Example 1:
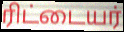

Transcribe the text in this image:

ரிட்டையர்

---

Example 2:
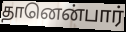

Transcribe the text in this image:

தானென்பார்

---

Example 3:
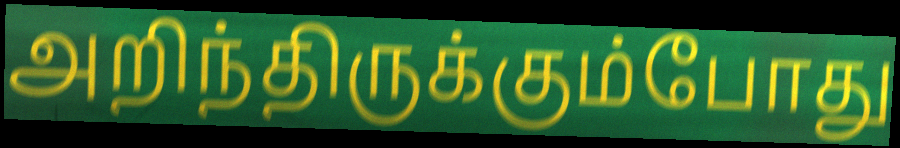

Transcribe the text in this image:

அறிந்திருக்கும்போது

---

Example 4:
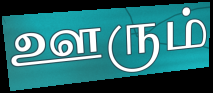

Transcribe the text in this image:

ஊரும்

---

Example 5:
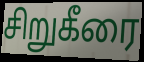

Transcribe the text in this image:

சிறுகீரை